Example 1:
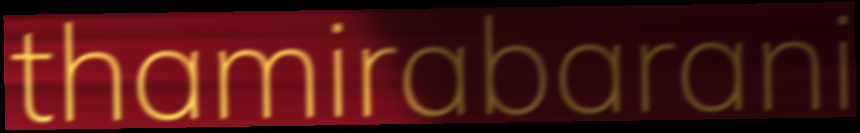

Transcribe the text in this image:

thamirabarani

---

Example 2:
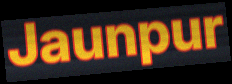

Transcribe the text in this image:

Jaunpur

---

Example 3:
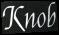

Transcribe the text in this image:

Knob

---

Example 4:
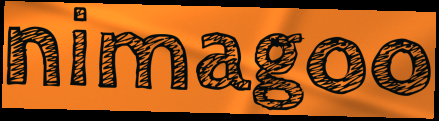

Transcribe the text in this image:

nimagoo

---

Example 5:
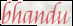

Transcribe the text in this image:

bhandu